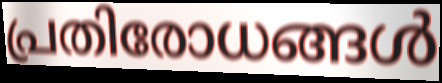
പ്രതിരോധങ്ങൾ